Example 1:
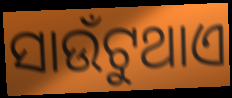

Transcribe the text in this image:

ସାଉଁଟୁଥାଏ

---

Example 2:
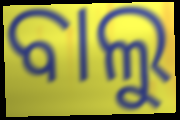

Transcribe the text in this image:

ବାଲୁ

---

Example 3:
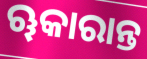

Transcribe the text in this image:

ୠକାରାନ୍ତ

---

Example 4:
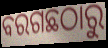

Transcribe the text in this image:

ବରଗଛଠାରୁ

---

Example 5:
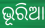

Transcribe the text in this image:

ଭୂରିଆ